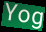
Yog